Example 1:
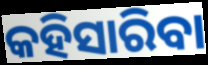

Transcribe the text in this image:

କହିସାରିବା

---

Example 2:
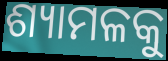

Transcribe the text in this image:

ଶ୍ୟାମଳକୁ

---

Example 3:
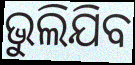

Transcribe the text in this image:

ଭୁଲିଯିବ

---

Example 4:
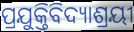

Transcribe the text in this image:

ପ୍ରଯୁକ୍ତିବିଦ୍ୟାଶ୍ରୟୀ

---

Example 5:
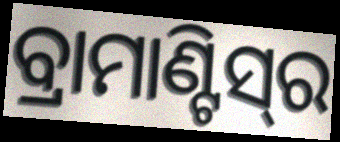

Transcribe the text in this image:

ବ୍ରାମାଣ୍ଟିସ୍‌ର